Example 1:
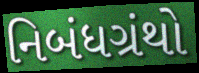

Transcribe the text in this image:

નિબંધગ્રંથો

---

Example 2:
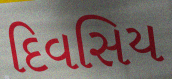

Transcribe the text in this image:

દિવસિય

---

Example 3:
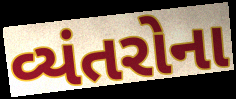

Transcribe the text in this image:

વ્યંતરોના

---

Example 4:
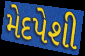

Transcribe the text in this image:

મેદપેશી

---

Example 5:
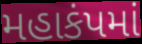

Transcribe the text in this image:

મહાકંપમાં